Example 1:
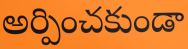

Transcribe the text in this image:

అర్పించకుండా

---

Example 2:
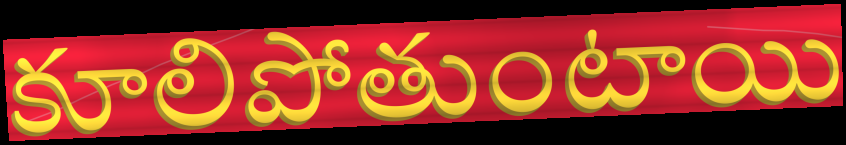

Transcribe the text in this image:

కూలిపోతుంటాయి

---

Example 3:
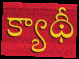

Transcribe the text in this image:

క్యాథీ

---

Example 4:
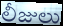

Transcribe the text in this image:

లీజులు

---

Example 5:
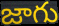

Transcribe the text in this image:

జాగు